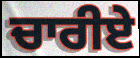
ਚਾਰੀਏ